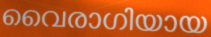
വൈരാഗിയായ